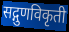
सद्गुणविकृती